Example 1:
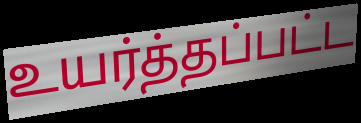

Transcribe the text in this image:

உயர்த்தப்பட்ட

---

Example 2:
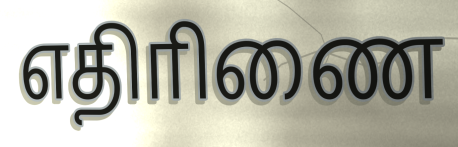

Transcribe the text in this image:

எதிரிணை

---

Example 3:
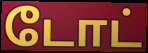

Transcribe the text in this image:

டோட்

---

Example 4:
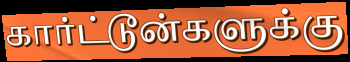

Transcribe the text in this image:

கார்ட்டூன்களுக்கு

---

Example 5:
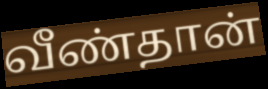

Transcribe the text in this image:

வீண்தான்